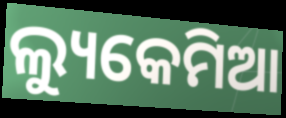
ଲ୍ୟୁକେମିଆ